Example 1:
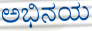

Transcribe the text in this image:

ಅಭಿನಯ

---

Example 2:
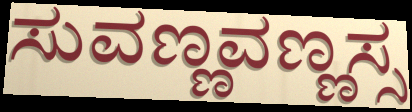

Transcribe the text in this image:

ಸುವಣ್ಣವಣ್ಣಸ್ಸ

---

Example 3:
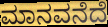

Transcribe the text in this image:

ಮಾನವನೆದೆ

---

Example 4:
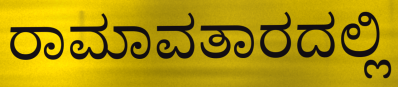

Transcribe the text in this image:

ರಾಮಾವತಾರದಲ್ಲಿ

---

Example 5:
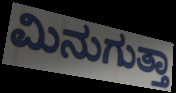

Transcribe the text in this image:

ಮಿನುಗುತ್ತಾ